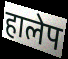
हालेप